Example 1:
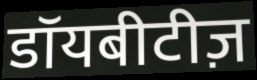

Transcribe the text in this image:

डॉयबीटीज़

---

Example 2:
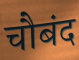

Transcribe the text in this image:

चौबंद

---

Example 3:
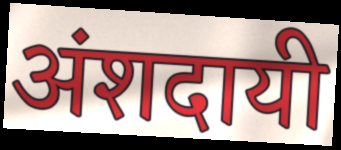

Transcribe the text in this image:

अंशदायी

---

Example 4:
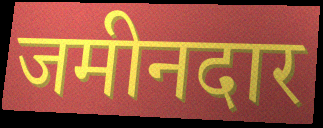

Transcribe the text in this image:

जमीनदार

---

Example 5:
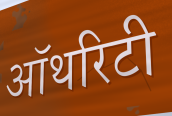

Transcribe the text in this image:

ऑथरिटी